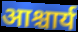
आश्चार्य